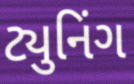
ટ્યુનિંગ